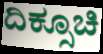
ದಿಕ್ಸೂಚಿ